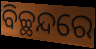
ବିଚ୍ଛନ୍ଦରେ